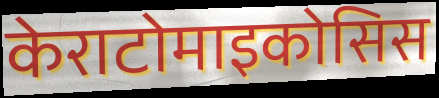
केराटोमाइकोसिस